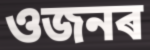
ওজনৰ